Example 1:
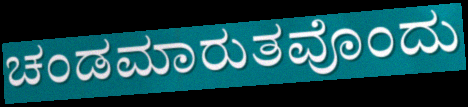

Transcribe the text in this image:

ಚಂಡಮಾರುತವೊಂದು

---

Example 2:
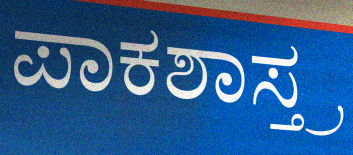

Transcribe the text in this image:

ಪಾಕಶಾಸ್ತ್ರ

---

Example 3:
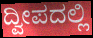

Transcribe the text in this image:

ದ್ವೀಪದಲ್ಲಿ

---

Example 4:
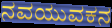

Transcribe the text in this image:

ನವಯುವಕನ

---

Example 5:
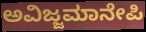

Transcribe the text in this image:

ಅವಿಜ್ಜಮಾನೇಪಿ